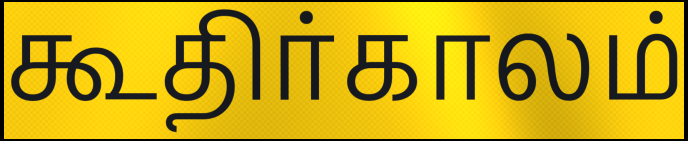
கூதிர்காலம்